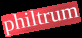
philtrum